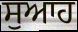
ਸੁਆਹ